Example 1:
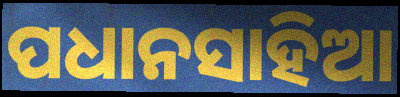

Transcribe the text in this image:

ପଧାନସାହିଆ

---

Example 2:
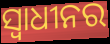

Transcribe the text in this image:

ସ୍ୱାଧୀନର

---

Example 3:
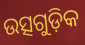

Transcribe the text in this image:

ଉତ୍ସଗୁଡ଼ିକ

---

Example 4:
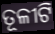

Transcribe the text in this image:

ତୂଳୀଟି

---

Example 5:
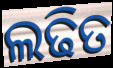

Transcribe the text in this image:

ଲଢିତ